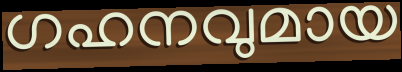
ഗഹനവുമായ